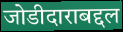
जोडीदाराबद्दल